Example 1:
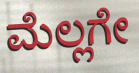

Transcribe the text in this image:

ಮೆಲ್ಲಗೇ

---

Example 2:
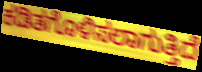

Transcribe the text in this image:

ಕಡಿತಗೊಳಿಸಲಾಗುತ್ತಿದೆ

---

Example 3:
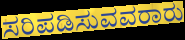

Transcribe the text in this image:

ಸರಿಪಡಿಸುವವರಾರು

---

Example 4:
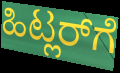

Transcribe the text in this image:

ಹಿಟ್ಲರ್‌ಗೆ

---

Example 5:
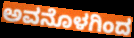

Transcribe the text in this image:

ಅವನೊಳಗಿಂದ